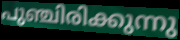
പുഞ്ചിരിക്കുന്നു